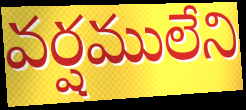
వర్షములేని